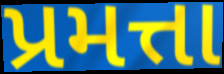
પ્રમત્તા